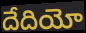
దేదియో